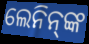
ଲେନିନ୍‌ଙ୍କ